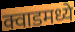
क्वाडमध्ये